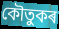
কৌতুকৰ